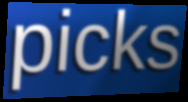
picks